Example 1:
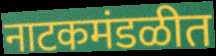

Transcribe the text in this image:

नाटकमंडळीत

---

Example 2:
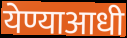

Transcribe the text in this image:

येण्याआधी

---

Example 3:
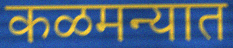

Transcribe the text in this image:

कळमन्यात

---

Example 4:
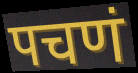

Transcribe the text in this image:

पचणं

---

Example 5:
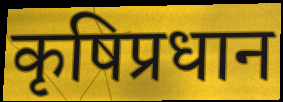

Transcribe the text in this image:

कृषिप्रधान